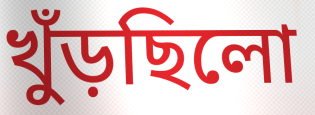
খুঁড়ছিলো